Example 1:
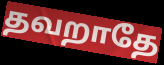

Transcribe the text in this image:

தவறாதே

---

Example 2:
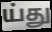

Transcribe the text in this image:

ய்து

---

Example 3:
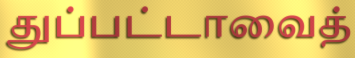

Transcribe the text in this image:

துப்பட்டாவைத்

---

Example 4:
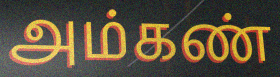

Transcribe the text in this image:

அம்கண்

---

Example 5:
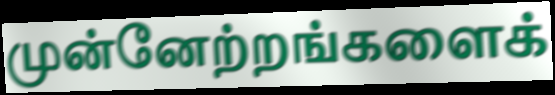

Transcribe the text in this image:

முன்னேற்றங்களைக்